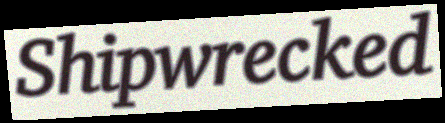
Shipwrecked